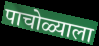
पाचोळ्याला